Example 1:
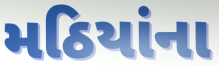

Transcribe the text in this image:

મઠિયાંના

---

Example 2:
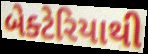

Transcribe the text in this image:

બેક્ટેરિયાથી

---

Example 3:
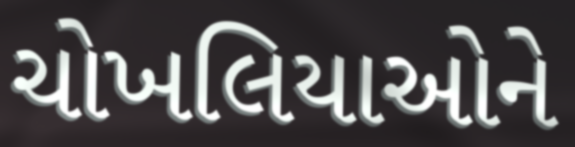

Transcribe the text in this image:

ચોખલિયાઓને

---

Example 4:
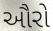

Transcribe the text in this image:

ઔરો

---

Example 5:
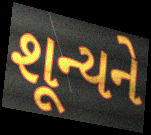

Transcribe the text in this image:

શૂન્યને